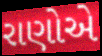
રાણોએ